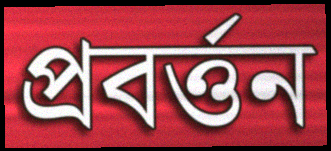
প্রবর্ত্তন